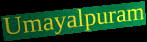
Umayalpuram